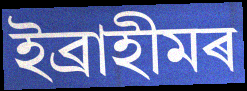
ইব্ৰাহীমৰ